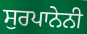
ਸੁਰਪਾਨੇਨੀ